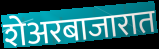
शेअरबाजारात